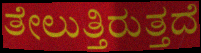
ತೇಲುತ್ತಿರುತ್ತದೆ